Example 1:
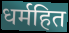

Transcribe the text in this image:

धर्महित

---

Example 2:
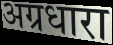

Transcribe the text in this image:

अग्रधारा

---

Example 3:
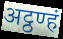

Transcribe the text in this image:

अट्ठण्हं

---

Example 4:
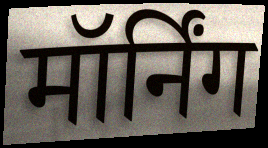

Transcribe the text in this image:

मॉर्निंग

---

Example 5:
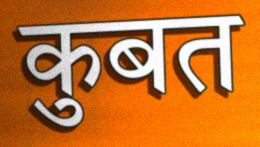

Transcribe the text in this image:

कुबत